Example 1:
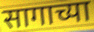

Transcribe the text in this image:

सागाच्या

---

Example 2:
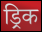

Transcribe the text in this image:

ड्रिक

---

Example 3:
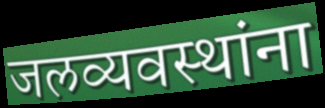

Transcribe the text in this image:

जलव्यवस्थांना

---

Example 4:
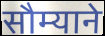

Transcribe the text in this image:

सौम्याने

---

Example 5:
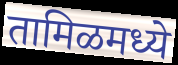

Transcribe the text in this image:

तामिळमध्ये